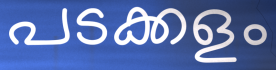
പടക്കളം